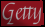
Getty